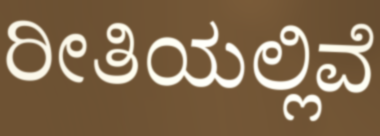
ರೀತಿಯಲ್ಲಿವೆ